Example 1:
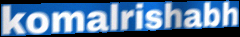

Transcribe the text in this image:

komalrishabh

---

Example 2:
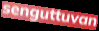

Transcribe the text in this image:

senguttuvan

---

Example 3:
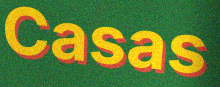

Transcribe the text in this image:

Casas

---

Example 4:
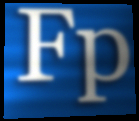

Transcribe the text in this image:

Fp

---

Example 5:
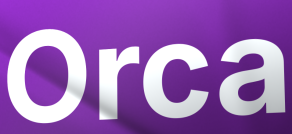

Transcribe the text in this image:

Orca